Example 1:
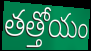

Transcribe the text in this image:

తత్తోయం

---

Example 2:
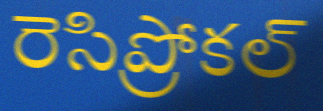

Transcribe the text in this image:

రెసిప్రోకల్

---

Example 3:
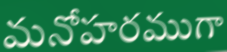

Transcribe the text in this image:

మనోహరముగా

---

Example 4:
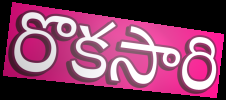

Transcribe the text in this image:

రొకసారి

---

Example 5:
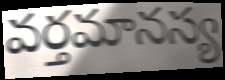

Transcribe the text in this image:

వర్తమానస్య